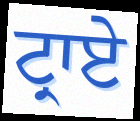
ਟ੍ਰਾਏ